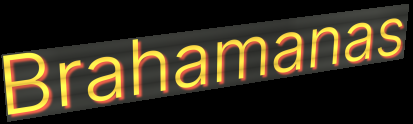
Brahamanas